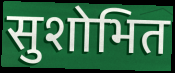
सुशोभित